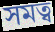
সমত্ব